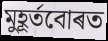
মুহূৰ্তবোৰত